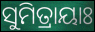
ସୁମିତ୍ରାୟାଃ